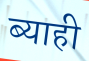
ब्याही